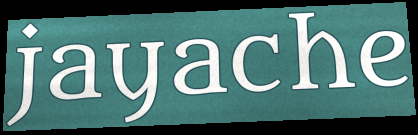
jayache